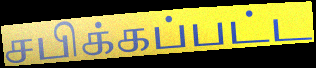
சபிக்கப்பட்ட